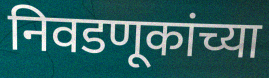
निवडणूकांच्या